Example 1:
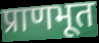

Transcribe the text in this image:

प्राणभूत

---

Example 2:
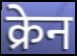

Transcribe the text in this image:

क्रेन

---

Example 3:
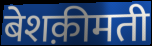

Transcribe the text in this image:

बेशक़ीमती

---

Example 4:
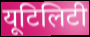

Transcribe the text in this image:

यूटिलिटी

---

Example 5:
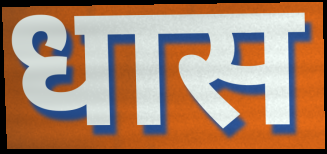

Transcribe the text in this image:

धास